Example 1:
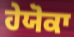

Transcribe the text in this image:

ਹੇਯੋਕਾ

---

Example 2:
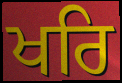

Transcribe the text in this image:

ਖਰਿ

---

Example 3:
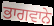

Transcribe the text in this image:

ਭਾਗਵਾਨੇ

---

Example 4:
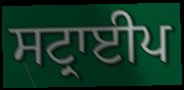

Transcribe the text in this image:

ਸਟ੍ਰਾਈਪ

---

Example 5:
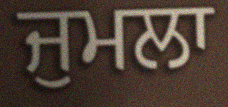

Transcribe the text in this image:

ਜੁਮਲਾ